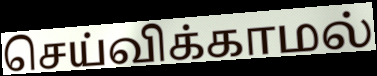
செய்விக்காமல்